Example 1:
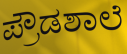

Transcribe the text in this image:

ಪ್ರೌಡಶಾಲೆ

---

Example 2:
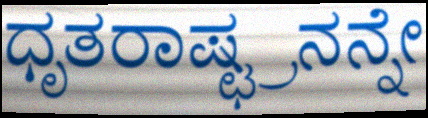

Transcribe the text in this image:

ಧೃತರಾಷ್ಟ್ರನನ್ನೇ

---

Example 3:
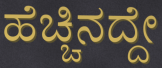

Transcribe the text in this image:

ಹೆಚ್ಚಿನದ್ದೇ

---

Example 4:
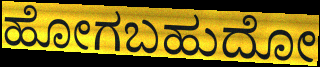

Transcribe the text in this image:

ಹೋಗಬಹುದೋ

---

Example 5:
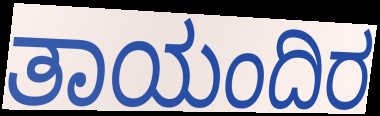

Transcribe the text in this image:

ತಾಯಂದಿರ